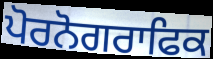
ਪੋਰਨੋਗਰਾਫਿਕ